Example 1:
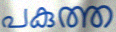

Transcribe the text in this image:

പകുത്ത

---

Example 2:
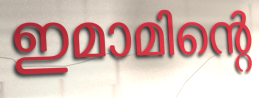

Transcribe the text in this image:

ഇമാമിന്റെ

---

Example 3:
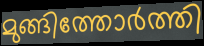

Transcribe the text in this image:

മുങ്ങിത്തോർത്തി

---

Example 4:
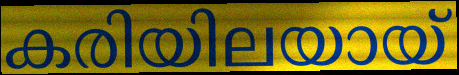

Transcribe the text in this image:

കരിയിലയായ്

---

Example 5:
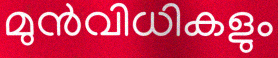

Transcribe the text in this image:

മുൻവിധികളും